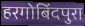
हरगोबिंदपुरा